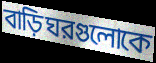
বাড়িঘরগুলোকে